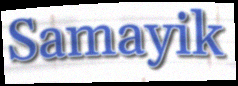
Samayik